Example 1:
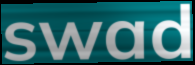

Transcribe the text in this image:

swad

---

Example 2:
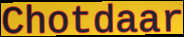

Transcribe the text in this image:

Chotdaar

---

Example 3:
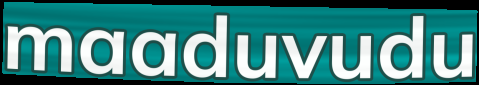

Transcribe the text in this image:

maaduvudu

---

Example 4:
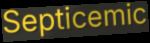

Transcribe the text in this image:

Septicemic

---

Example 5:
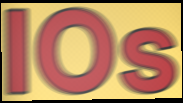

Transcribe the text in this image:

IOs